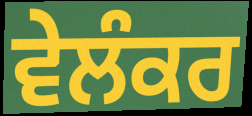
ਵੇਲੰਕਰ